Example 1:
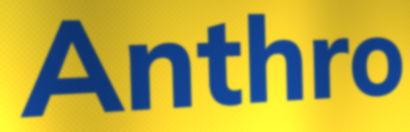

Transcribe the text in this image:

Anthro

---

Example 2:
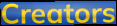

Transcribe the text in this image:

Creators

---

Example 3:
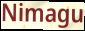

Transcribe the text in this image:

Nimagu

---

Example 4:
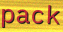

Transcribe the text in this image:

pack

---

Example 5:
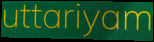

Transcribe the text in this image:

uttariyam